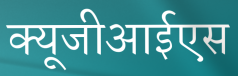
क्यूजीआईएस